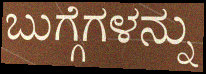
ಬುಗ್ಗೆಗಳನ್ನು